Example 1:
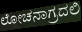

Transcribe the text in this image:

ಲೋಚನಾಗ್ರದಲಿ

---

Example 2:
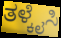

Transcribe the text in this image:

ತಳ್ಕೈಸಿ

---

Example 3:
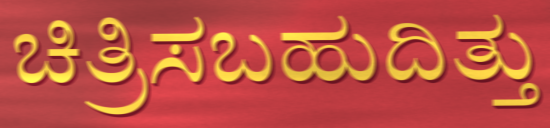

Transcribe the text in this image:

ಚಿತ್ರಿಸಬಹುದಿತ್ತು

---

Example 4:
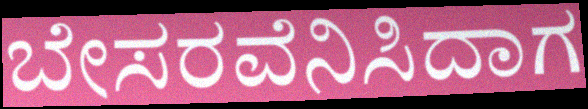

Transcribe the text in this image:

ಬೇಸರವೆನಿಸಿದಾಗ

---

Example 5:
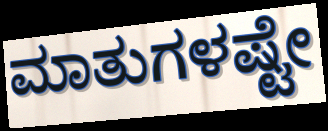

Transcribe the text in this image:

ಮಾತುಗಳಷ್ಟೇ